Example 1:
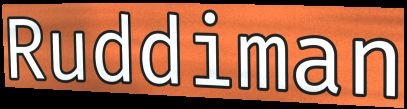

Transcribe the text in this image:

Ruddiman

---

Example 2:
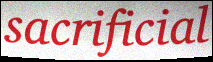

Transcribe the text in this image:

sacrificial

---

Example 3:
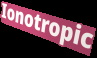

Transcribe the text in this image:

Ionotropic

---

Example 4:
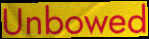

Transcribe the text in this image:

Unbowed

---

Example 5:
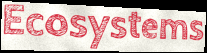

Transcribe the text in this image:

Ecosystems